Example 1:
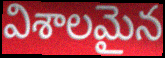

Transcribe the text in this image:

విశాలమైన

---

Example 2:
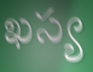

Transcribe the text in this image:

ఖస్య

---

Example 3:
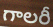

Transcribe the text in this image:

గాలరీ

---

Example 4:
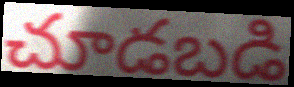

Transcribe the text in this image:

చూడబడి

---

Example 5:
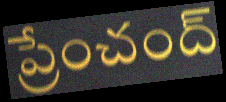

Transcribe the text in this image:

ప్రేంచంద్